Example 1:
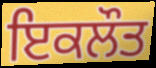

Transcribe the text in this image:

ਇਕਲੌਤ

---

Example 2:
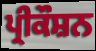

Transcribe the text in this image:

ਪ੍ਰੀਕੌਸ਼ਨ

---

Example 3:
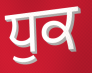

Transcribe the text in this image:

ਧੁਕ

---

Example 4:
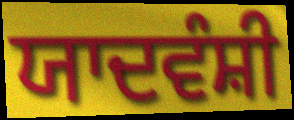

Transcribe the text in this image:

ਯਾਦਵੰਸ਼ੀ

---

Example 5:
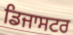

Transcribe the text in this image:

ਡਿਜਾਸਟਰ